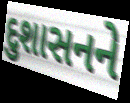
દુશાસનને